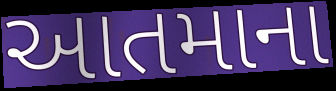
આતમાના